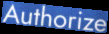
Authorize